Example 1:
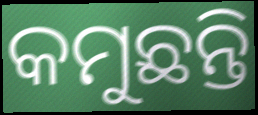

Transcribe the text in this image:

କମୁଛନ୍ତି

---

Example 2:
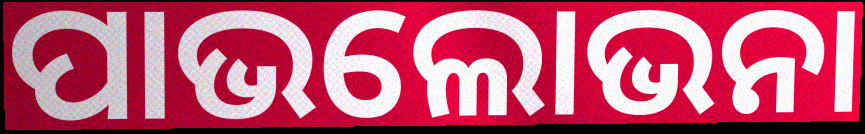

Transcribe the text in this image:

ପାଭଲୋଭନା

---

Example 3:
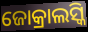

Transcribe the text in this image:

ଜୋକ୍ରାଲସ୍କି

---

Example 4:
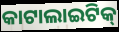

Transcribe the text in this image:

କାଟାଲାଇଟିକ୍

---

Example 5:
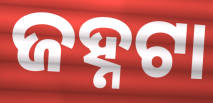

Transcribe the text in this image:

ଜହ୍ନଟା